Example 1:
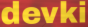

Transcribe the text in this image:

devki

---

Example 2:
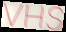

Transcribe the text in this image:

VHS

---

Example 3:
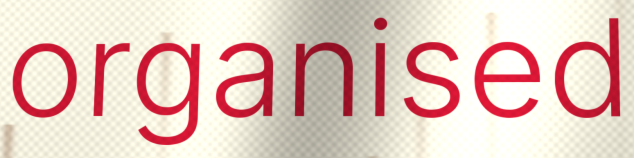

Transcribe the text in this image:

organised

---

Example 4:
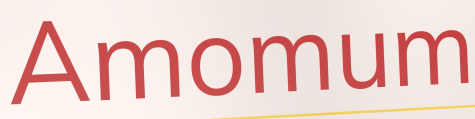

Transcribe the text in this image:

Amomum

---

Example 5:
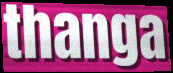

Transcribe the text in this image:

thanga